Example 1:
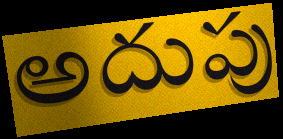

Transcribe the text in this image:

అదుపు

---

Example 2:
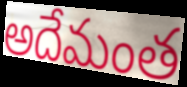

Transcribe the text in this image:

అదేమంత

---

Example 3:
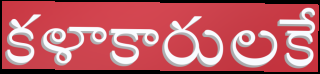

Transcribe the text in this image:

కళాకారులకే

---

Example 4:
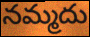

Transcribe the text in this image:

నమ్మదు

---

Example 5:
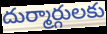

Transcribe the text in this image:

దుర్మార్గులకు